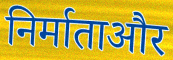
निर्माताऔर